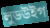
লুডউইগ